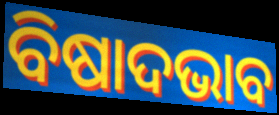
ବିଷାଦଭାବ